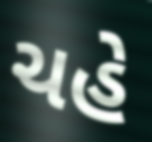
ચહે